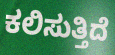
ಕಲಿಸುತ್ತಿದೆ